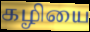
கழியை